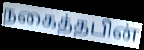
நகைத்தபின்